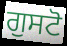
ਗੁਸਟੋ